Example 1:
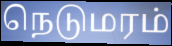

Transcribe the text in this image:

நெடுமரம்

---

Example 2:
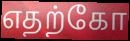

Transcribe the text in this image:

எதற்கோ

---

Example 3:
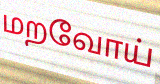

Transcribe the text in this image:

மறவோய்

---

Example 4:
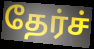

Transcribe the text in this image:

தேர்ச்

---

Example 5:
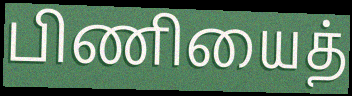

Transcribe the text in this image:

பிணியைத்